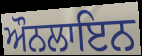
ਔਨਲਾਇਨ